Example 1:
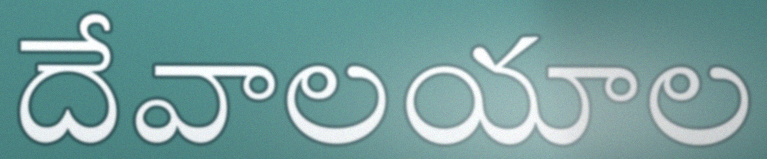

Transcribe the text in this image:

దేవాలయాల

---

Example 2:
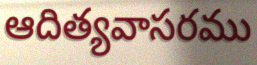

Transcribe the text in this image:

ఆదిత్యవాసరము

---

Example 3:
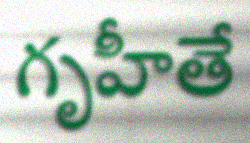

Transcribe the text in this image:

గృహీతే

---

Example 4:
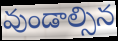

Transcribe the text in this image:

వుండాల్సిన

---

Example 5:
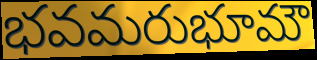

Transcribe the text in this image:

భవమరుభూమౌ